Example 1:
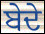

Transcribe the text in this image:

ਬੇਦੇ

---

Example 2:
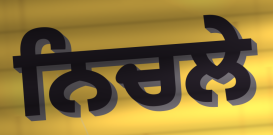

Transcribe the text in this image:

ਨਿਚਲੇ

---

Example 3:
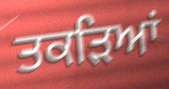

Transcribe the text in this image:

ਤਕੜਿਆਂ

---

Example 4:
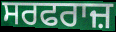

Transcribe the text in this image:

ਸਰਫਰਾਜ਼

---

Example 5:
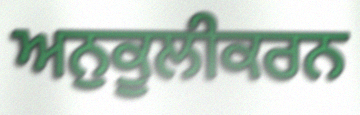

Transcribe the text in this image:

ਅਨੁਕੂਲੀਕਰਨ